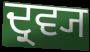
ਦ੍ਰਵ੍ਯ